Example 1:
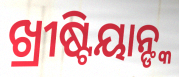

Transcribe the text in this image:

ଖ୍ରୀଷ୍ଟିୟାନ୍ଙ୍କ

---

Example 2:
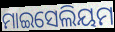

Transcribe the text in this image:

ମାଇସେଲିୟମ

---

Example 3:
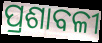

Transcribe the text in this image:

ପ୍ରଶାବଳୀ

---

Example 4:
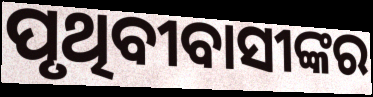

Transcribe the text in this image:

ପୃଥିବୀବାସୀଙ୍କର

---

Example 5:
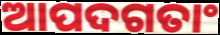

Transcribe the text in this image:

ଆପଦଗତାଂ